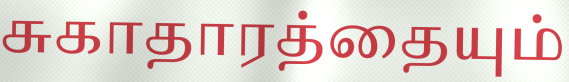
சுகாதாரத்தையும்